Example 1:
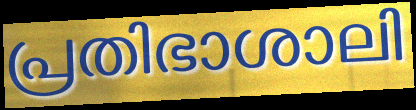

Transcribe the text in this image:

പ്രതിഭാശാലി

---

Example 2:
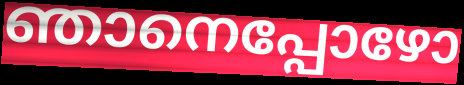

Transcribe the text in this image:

ഞാനെപ്പോഴോ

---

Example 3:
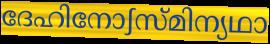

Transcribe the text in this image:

ദേഹിനോഽസ്മിന്യഥാ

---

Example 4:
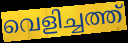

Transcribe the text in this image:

വെളിച്ചത്ത്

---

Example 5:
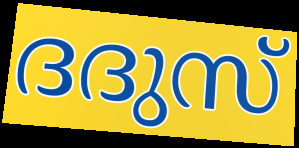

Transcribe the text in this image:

ദദുസ്